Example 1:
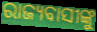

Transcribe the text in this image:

ରାଜ୍ୟବାସୀଙ୍କୁ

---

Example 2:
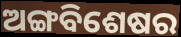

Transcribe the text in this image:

ଅଙ୍ଗବିଶେଷର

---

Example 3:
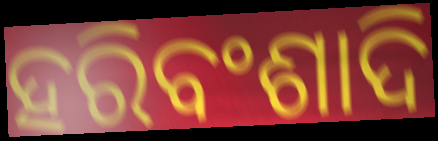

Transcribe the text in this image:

ହରିବଂଶାଦି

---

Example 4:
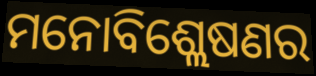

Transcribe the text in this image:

ମନୋବିଶ୍ଲେଷଣର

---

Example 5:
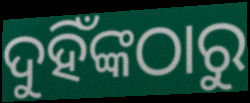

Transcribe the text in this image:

ଦୁହିଁଙ୍କଠାରୁ